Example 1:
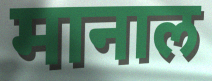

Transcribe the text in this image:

मानाल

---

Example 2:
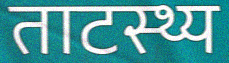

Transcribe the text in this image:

ताटस्थ्य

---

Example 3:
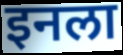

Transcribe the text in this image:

इनला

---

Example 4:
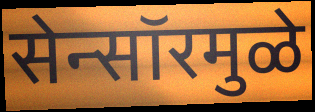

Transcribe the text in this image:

सेन्सॉरमुळे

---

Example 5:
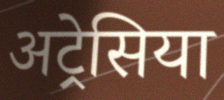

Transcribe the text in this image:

अट्रेसिया